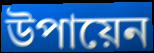
উপায়েন